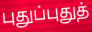
புதுப்புதுத்